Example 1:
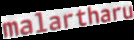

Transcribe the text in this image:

malartharu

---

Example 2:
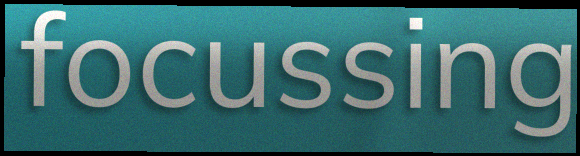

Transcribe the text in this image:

focussing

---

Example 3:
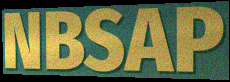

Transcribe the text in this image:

NBSAP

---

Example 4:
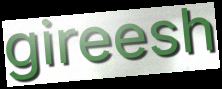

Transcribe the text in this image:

gireesh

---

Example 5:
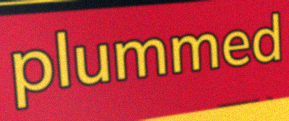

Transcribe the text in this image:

plummed